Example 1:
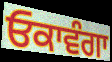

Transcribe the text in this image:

ਓਕਾਵੰਗਾ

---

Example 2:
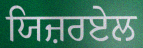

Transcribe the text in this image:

ਯਿਜ਼ਰਏਲ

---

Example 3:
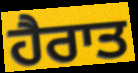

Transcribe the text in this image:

ਹੈਰਾਤ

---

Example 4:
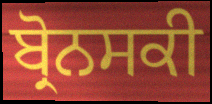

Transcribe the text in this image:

ਬ੍ਰੋਨਸਕੀ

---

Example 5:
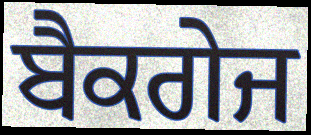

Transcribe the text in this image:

ਬੈਕਗੇਜ